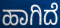
ಹಾಗಿದೆ